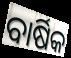
ବାର୍ଷିକ